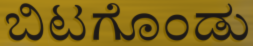
ಬಿಟಗೊಂಡು